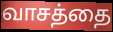
வாசத்தை